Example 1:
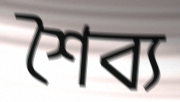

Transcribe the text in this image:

শৈব্য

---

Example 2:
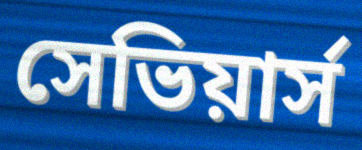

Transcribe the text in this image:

সেভিয়ার্স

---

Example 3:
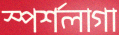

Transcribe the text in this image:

স্পর্শলাগা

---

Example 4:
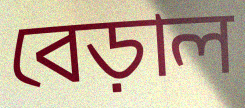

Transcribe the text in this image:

বেড়াল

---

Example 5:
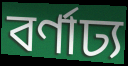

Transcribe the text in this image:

বর্ণাঢ্য